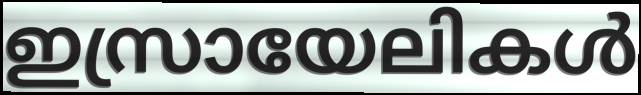
ഇസ്രായേലികൾ